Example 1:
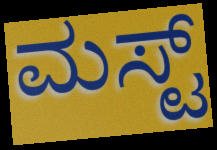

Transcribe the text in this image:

ಮಸ್ಟ್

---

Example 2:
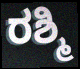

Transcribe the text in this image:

ರಶ್ಮಿ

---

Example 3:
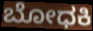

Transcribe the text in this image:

ಬೋಧಕಿ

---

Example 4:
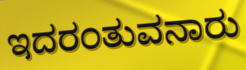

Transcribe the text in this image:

ಇದರಂತುವನಾರು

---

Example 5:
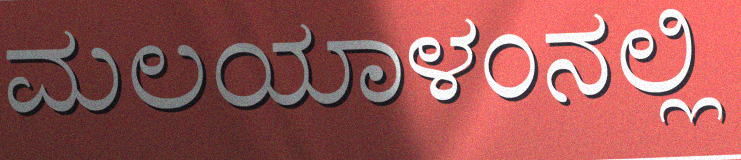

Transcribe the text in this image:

ಮಲಯಾಳಂನಲ್ಲಿ